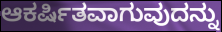
ಆಕರ್ಷಿತವಾಗುವುದನ್ನು